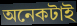
অনেকটাই